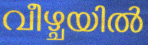
വീഴ്ചയിൽ